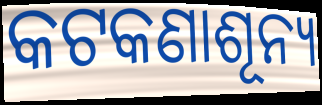
କଟକଣାଶୂନ୍ୟ